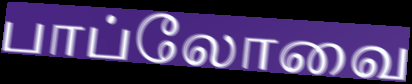
பாப்லோவை